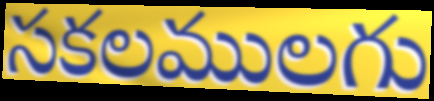
సకలములగు